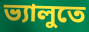
ভ্যালুতে